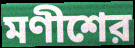
মণীশের